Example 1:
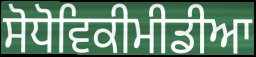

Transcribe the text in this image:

ਸੋਧੋਵਿਕੀਮੀਡੀਆ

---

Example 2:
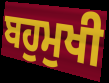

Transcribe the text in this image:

ਬਹੁਮੁਖੀ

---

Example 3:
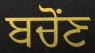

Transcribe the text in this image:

ਬਚੋਂਣ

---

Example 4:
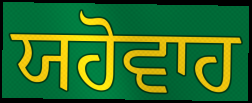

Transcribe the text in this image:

ਯਹੋਵਾਹ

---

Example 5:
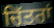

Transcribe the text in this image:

ਚਿੱਤਰਾਂ